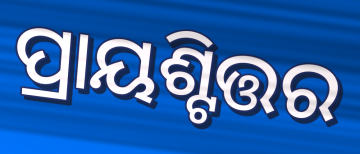
ପ୍ରାୟଶ୍ଟିତ୍ତର